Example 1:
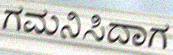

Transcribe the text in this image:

ಗಮನಿಸಿದಾಗ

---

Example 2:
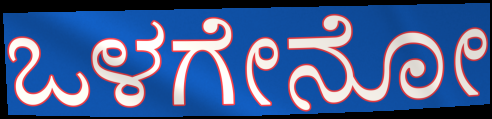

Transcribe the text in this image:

ಒಳಗೇನೋ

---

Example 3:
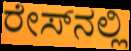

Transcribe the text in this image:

ರೇಸ್‍ನಲ್ಲಿ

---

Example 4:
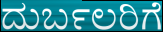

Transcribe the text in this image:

ದುರ್ಬಲರಿಗೆ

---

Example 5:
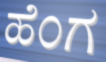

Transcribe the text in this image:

ಹೆಂಗ